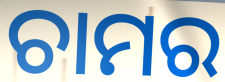
ଚାମର